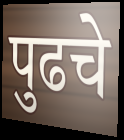
पुढचे